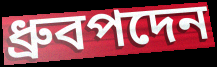
ধ্রুবপদেন